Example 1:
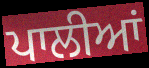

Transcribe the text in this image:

ਪਾਲੀਆਂ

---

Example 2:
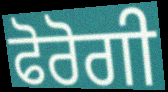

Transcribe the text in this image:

ਫੋਰੋਗੀ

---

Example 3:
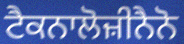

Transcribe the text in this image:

ਟੈਕਨਾਲੋਜ਼ੀਨੈਨੋ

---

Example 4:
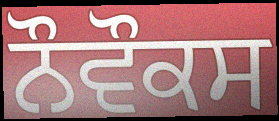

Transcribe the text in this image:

ਨੌਵੌਕਸ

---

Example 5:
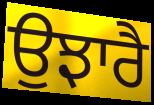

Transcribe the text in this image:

ਉਝਾਰੈ